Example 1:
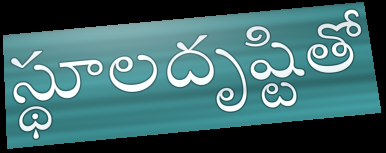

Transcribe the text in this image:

స్థూలదృష్టితో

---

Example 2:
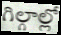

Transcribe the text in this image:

గిల్గాల్లో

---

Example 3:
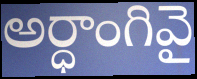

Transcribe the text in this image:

అర్ధాంగివై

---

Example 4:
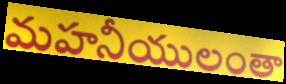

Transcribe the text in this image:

మహనీయులంతా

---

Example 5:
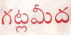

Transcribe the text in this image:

గట్లమీద